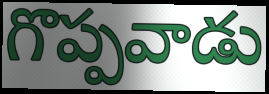
గొప్పవాడు